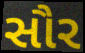
સૌર